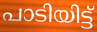
പാടിയിട്ട്